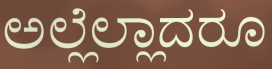
ಅಲ್ಲೆಲ್ಲಾದರೂ